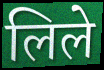
लिले